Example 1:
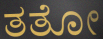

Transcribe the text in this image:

ತತೋ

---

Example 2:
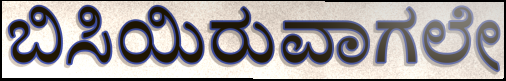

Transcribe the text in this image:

ಬಿಸಿಯಿರುವಾಗಲೇ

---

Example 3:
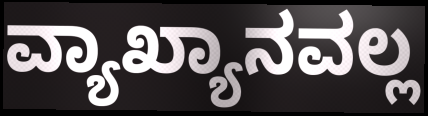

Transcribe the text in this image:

ವ್ಯಾಖ್ಯಾನವಲ್ಲ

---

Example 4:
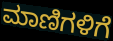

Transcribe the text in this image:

ಮಾಣಿಗಳಿಗೆ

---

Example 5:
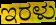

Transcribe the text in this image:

ಇರಳು